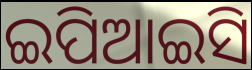
ଇପିଆଇସି